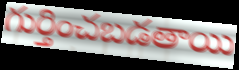
గుర్తించబడతాయి